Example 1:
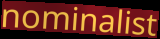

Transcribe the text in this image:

nominalist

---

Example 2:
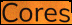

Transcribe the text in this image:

Cores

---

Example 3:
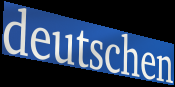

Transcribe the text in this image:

deutschen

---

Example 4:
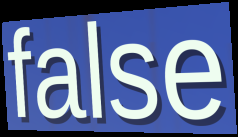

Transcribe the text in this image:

false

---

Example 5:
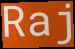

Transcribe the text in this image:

Raj